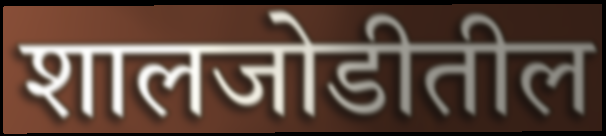
शालजोडीतील